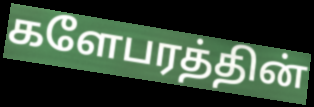
களேபரத்தின்